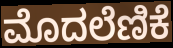
ಮೊದಲೆಣಿಕೆ